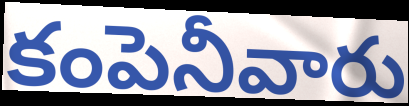
కంపెనీవారు